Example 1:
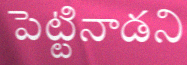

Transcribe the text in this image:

పెట్టినాడని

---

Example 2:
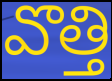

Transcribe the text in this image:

వొత్తి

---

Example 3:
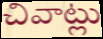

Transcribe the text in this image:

చివాట్లు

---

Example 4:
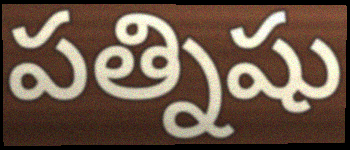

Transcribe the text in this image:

పత్నిషు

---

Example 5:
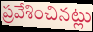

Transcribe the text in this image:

ప్రవేశించినట్లు